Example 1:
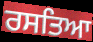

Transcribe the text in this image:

ਰਸਤਿਆ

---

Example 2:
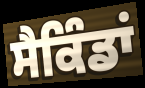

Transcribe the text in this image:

ਸੈਕਿੰਡਾਂ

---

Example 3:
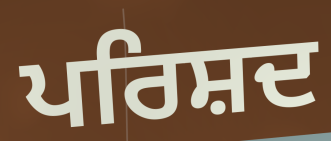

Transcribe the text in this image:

ਪਰਿਸ਼ਦ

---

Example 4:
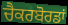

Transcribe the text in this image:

ਚੈਕਰਬੋਰਡਾਂ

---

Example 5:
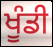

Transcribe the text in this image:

ਖੂੰਡੀ